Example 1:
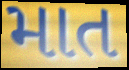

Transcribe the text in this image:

માત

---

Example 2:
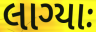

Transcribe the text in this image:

લાગ્યાઃ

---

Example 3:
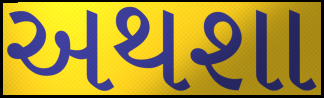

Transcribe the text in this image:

અથશા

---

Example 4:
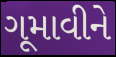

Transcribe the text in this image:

ગૂમાવીને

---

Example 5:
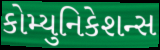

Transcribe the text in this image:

કોમ્યુનિકેશન્સ